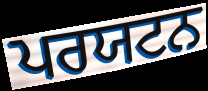
ਪਰਯਟਨ